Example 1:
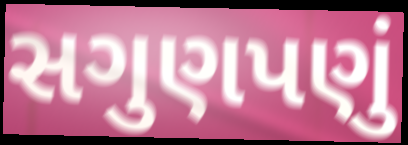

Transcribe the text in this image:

સગુણપણું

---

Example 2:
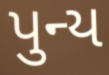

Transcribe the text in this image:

પુન્ય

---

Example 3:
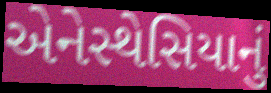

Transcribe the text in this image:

એનેસ્થેસિયાનું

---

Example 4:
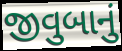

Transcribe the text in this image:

જીવુબાનું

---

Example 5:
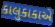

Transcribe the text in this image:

કાલુકાકાએ